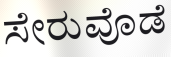
ಸೇರುವೊಡೆ